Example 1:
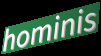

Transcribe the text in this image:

hominis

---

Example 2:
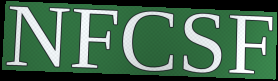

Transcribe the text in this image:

NFCSF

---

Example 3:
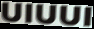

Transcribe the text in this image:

UIUUI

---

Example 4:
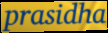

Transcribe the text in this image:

prasidha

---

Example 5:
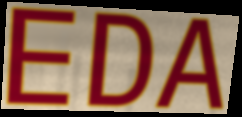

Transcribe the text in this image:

EDA